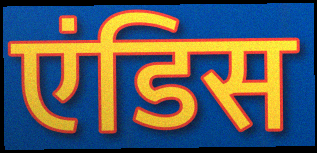
एंडिस